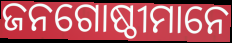
ଜନଗୋଷ୍ଠୀମାନେ